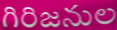
గిరిజనుల